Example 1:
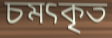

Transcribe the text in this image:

চমৎকৃত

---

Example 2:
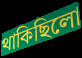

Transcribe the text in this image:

থাকিছিলো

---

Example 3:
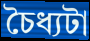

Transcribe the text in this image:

চৈধ্যটা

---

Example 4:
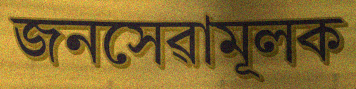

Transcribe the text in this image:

জনসেৱামূলক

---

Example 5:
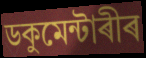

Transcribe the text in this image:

ডকুমেন্টাৰীৰ